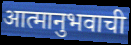
आत्मानुभवाची